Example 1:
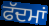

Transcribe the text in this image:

ਫੱਦਮਾਂ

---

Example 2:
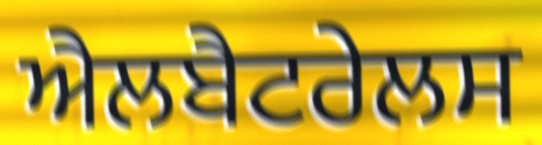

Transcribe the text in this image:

ਐਲਬੈਟਰੇਲਸ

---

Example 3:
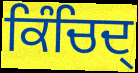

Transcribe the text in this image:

ਕਿੰਚਿਦ੍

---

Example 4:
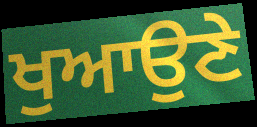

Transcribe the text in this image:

ਖੁਆਉਣੇ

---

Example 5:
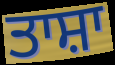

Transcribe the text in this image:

ਤਾਸ਼ਾ